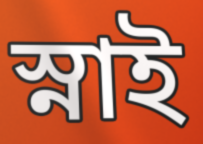
স্নাই